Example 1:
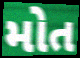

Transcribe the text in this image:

મોત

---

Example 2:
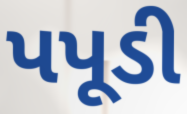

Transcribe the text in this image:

પપૂડી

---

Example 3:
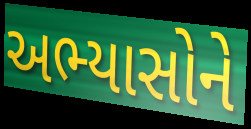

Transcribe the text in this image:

અભ્યાસોને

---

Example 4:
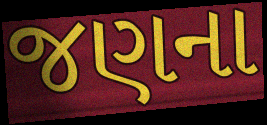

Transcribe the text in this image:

જણના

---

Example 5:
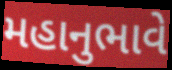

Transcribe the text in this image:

મહાનુભાવે